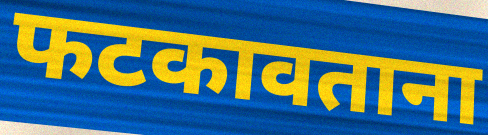
फटकावताना